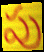
పు